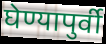
घेण्यापुर्वी